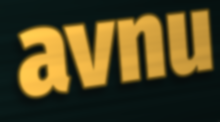
avnu